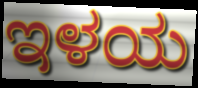
ಇಳಯ